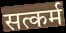
सत्कर्म